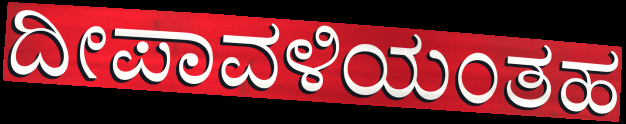
ದೀಪಾವಳಿಯಂತಹ